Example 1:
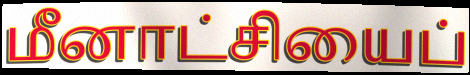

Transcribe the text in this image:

மீனாட்சியைப்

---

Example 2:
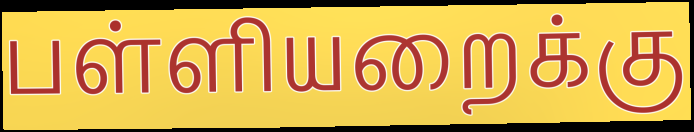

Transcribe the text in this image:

பள்ளியறைக்கு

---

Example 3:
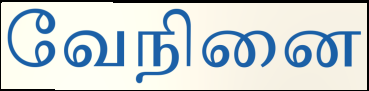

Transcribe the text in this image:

வேநினை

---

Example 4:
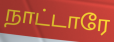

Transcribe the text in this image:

நாட்டாரே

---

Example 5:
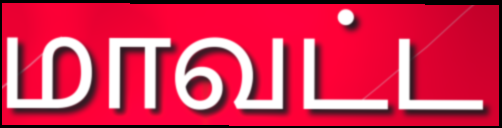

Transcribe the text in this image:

மாவட்ட